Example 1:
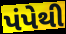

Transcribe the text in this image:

પંપેથી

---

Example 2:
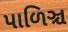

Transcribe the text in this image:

પાળિઞ્ચ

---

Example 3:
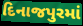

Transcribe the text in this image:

દિનાજપુરમાં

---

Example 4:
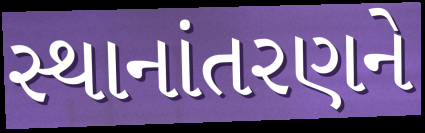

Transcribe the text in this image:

સ્થાનાંતરણને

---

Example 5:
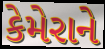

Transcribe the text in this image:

કેમેરાને